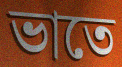
ভাতে